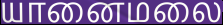
யானைமலை